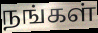
நங்கள்